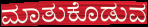
ಮಾತುಕೊಡುವ